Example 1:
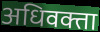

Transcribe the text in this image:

अधिवक्ता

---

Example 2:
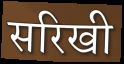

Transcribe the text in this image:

सरिखी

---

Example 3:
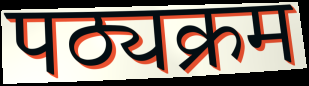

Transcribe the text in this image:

पठ्यक्रम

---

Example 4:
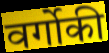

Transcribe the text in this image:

वर्गोकी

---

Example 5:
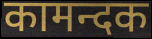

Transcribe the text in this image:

कामन्दक